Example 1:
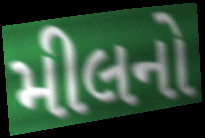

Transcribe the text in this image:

મીલનો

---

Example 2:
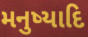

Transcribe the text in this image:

મનુષ્યાદિ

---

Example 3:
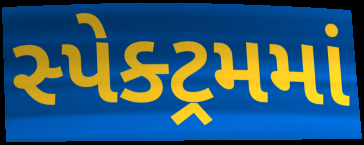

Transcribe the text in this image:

સ્પેક્ટ્રમમાં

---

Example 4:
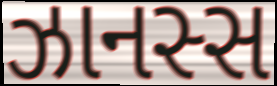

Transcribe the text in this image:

ઝાનસ્સ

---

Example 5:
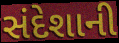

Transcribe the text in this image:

સંદેશાની